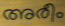
അരീം